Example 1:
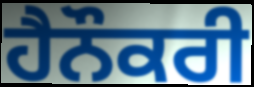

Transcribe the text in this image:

ਹੈਨੌਕਰੀ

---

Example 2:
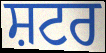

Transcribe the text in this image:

ਸ਼ਟਰ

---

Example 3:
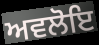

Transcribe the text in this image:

ਅਵਲੋਇ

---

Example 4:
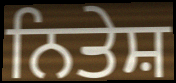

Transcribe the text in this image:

ਨਿਤੇਸ਼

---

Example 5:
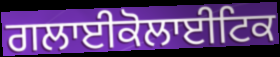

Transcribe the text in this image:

ਗਲਾਈਕੋਲਾਈਟਿਕ